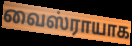
வைஸ்ராயாக